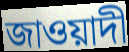
জাওয়াদী